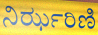
ನಿರ್ಝರಿಣಿ